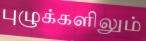
புழுக்களிலும்